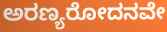
ಅರಣ್ಯರೋದನವೇ